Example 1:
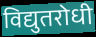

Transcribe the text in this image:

विद्युतरोधी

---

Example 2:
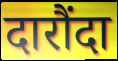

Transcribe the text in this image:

दारौंदा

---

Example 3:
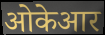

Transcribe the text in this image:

ओकेआर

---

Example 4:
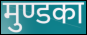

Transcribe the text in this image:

मुण्डका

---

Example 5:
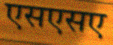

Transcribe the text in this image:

एसएसए